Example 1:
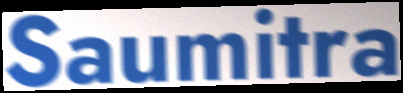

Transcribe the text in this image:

Saumitra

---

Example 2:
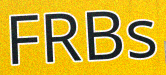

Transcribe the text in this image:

FRBs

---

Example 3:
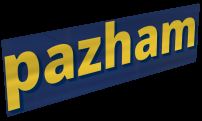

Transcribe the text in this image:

pazham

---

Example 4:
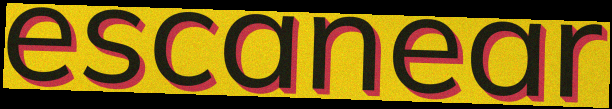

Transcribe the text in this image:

escanear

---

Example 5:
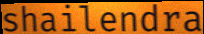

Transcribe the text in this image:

shailendra